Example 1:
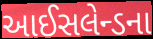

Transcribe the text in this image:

આઈસલેન્ડના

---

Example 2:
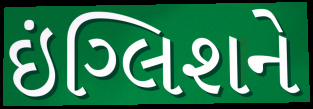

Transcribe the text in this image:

ઇંગ્લિશને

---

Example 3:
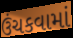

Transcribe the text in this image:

ઉંચકવામાં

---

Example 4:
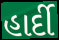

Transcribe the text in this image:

હાર્દી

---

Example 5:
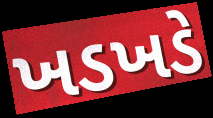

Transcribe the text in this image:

ખડખડે